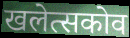
खलेत्सकोव